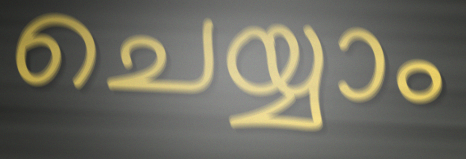
ചെയ്യാം